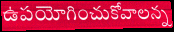
ఉపయోగించుకోవాలన్న